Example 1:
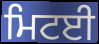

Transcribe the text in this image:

ਮਿਟਈ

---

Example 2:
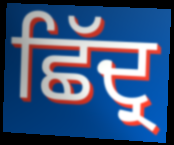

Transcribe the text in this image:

ਛਿੱਦ੍ਰ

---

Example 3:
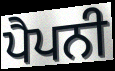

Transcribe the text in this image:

ਪੈਪਨੀ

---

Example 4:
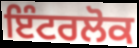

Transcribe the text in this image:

ਇੰਟਰਲੋਕ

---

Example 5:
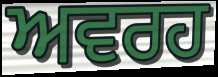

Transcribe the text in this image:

ਅਵਰਹ